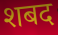
शबद